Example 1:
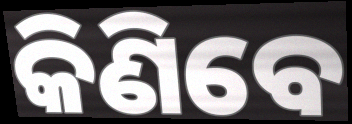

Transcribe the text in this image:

କିଣିବେ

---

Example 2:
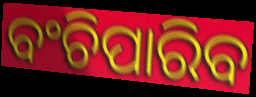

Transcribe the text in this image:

ବଂଚିପାରିବ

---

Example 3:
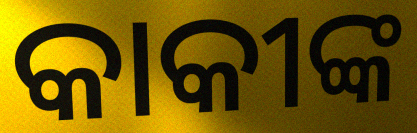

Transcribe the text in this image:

କାକୀଙ୍କ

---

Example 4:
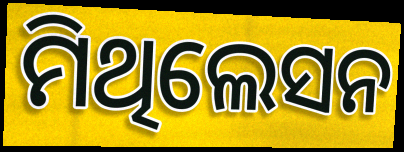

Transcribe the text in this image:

ମିଥିଲେସନ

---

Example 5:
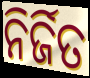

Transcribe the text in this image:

ନିର୍ଜିତ